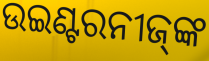
ଉଇଣ୍ଟରନୀଜ୍‌ଙ୍କ